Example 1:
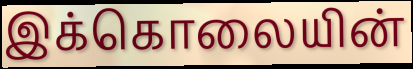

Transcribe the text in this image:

இக்கொலையின்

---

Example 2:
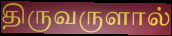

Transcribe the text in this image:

திருவருளால்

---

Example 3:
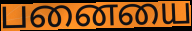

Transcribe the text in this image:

பனையை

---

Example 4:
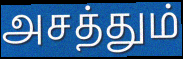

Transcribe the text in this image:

அசத்தும்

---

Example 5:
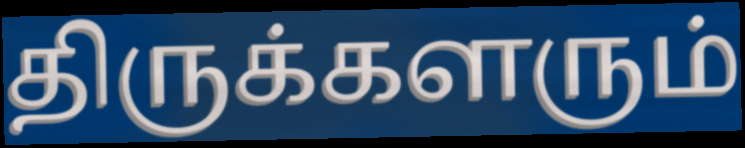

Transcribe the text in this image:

திருக்களரும்